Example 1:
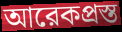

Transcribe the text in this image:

আরেকপ্রস্ত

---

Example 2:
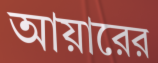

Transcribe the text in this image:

আয়ারের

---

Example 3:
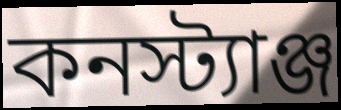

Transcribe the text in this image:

কনস্ট্যাঞ্জ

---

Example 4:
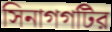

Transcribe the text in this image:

সিনাগগটির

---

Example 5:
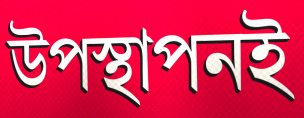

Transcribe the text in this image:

উপস্থাপনই